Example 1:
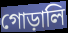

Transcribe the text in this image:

গোড়ালি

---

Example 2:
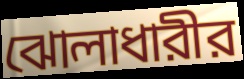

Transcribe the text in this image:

ঝোলাধারীর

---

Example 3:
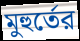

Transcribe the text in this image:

মুহুর্তের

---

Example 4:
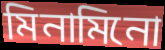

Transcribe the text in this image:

মিনামিনো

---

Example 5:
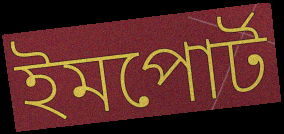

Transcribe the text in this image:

ইমপোর্ট